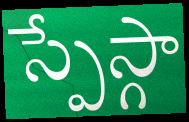
స్పేస్గా